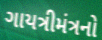
ગાયત્રીમંત્રનો